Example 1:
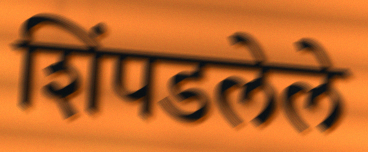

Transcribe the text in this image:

शिंपडलेले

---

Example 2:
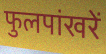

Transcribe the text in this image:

फुलपांखरें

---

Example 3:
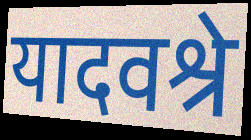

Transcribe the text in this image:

यादवश्रे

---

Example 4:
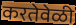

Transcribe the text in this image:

करतेवेळी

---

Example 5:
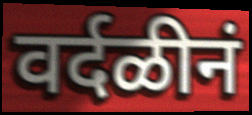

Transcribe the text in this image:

वर्दळीनं